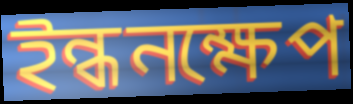
ইন্ধনক্ষেপ